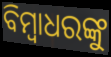
ବିମ୍ୱାଧରଙ୍କୁ